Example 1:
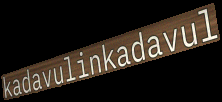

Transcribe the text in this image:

kadavulinkadavul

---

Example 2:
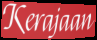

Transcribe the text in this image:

Kerajaan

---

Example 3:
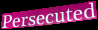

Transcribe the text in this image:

Persecuted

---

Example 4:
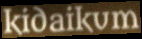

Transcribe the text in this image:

kidaikum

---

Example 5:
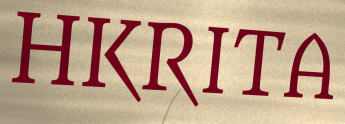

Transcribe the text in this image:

HKRITA